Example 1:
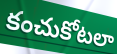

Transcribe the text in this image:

కంచుకోటలా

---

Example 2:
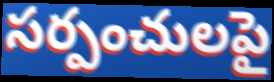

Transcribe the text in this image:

సర్పంచులపై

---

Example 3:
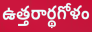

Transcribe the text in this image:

ఉత్తరార్థగోళం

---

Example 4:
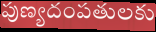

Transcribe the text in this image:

పుణ్యదంపతులకు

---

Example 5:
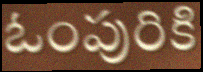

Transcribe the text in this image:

ఓంపురికి